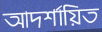
আদর্শায়িত